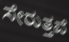
ಸೇರುತ್ತವೆ